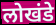
लोखंडे